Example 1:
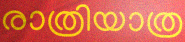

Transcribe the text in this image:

രാത്രിയാത്ര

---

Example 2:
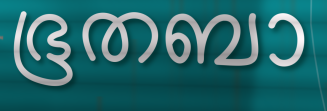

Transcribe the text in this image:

ഭൂതബാ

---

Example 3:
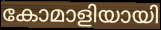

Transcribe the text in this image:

കോമാളിയായി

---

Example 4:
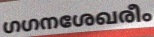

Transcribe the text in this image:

ഗഗനശേഖരീം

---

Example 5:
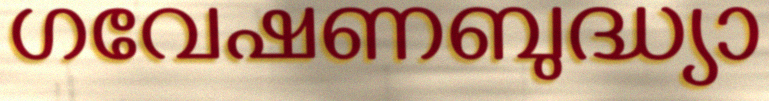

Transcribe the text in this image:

ഗവേഷണബുദ്ധ്യാ